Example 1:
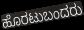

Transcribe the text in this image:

ಹೊರಟುಬಂದರು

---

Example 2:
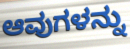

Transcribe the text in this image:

ಆವುಗಳನ್ನು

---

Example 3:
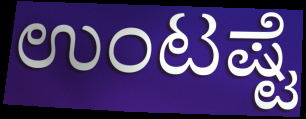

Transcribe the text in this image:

ಉಂಟಷ್ಟೆ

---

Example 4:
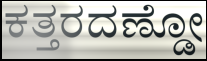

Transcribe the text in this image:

ಕತ್ತರದಣ್ಡೋ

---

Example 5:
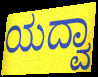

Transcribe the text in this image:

ಯದ್ವಾ